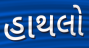
હાથલો